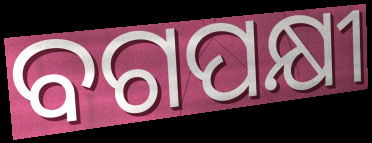
ବଗପକ୍ଷୀ